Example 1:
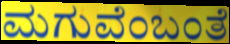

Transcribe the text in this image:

ಮಗುವೆಂಬಂತೆ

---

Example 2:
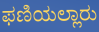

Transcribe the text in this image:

ಫಣಿಯಲ್ಲಾರು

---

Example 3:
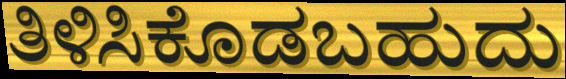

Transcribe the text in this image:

ತಿಳಿಸಿಕೊಡಬಹುದು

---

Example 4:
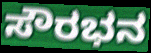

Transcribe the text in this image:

ಸೌರಭನ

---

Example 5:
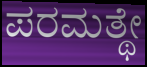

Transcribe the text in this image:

ಪರಮತ್ಥೇ